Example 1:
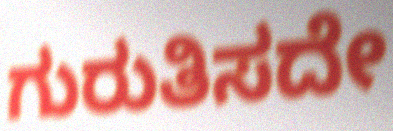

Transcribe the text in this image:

ಗುರುತಿಸದೇ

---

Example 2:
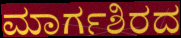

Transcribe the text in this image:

ಮಾರ್ಗಶಿರದ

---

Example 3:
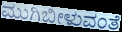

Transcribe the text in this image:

ಮುಗಿಬೀಳುವಂತೆ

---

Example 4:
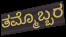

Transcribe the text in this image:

ತಮ್ಮೊಬ್ಬರ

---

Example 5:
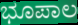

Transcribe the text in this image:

ಭೂಪಾಲ